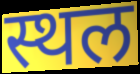
स्थल